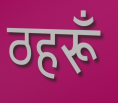
ठहरूँ